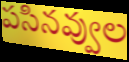
పసినవ్వుల